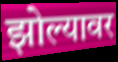
झोल्यावर